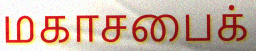
மகாசபைக்